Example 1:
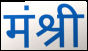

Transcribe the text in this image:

मंश्री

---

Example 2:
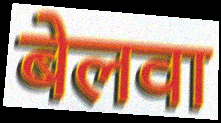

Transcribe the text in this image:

बेलवा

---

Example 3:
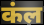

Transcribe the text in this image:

कंल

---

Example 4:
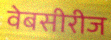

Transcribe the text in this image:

वेबसीरीज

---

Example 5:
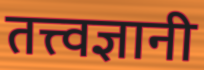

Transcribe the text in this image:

तत्त्वज्ञानी